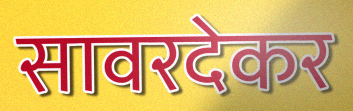
सावरदेकर